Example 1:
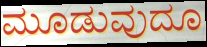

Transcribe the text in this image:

ಮೂಡುವುದೂ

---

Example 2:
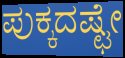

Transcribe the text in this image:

ಪುಕ್ಕದಷ್ಟೇ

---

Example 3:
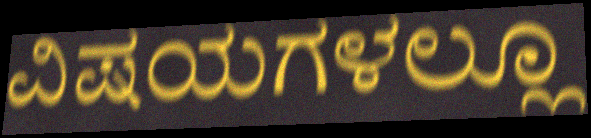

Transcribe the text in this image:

ವಿಷಯಗಳಲ್ಲೂ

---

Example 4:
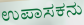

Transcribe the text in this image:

ಉಪಾಸಕನು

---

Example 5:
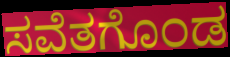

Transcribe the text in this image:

ಸವೆತಗೊಂಡ